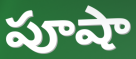
పూషా